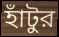
হাঁটুর